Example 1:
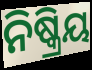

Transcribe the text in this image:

ନିଷ୍କ୍ରିୟ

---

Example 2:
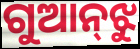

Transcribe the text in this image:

ଗୁଆନ୍‌ଝୁ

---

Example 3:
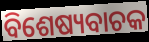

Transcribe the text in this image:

ବିଶେଷ୍ୟବାଚକ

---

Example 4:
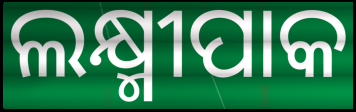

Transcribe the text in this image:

ଲକ୍ଷ୍ମୀପାକ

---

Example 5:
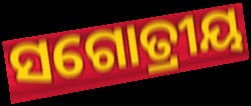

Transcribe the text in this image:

ସଗୋତ୍ରୀୟ